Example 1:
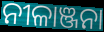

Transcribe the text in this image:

ନୀଳାଞ୍ଜନା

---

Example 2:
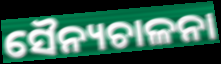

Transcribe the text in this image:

ସୈନ୍ୟଚାଳନା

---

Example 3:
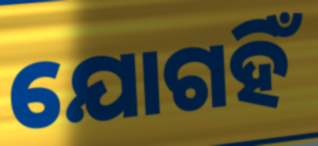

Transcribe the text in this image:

ଯୋଗହିଁ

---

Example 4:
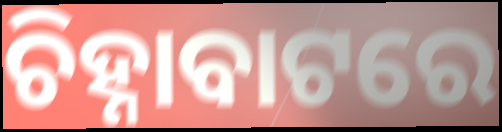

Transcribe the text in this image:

ଚିହ୍ନାବାଟରେ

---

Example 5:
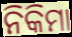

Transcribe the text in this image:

ନିକିମା